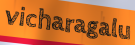
vicharagalu